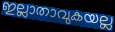
ഇല്ലാതാവുകയല്ല